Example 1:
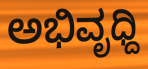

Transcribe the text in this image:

ಅಭಿವೃಧ್ದಿ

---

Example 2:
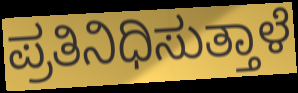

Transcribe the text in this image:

ಪ್ರತಿನಿಧಿಸುತ್ತಾಳೆ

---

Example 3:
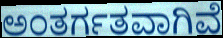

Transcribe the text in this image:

ಅಂತರ್ಗತವಾಗಿವೆ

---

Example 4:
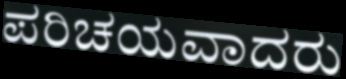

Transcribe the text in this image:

ಪರಿಚಯವಾದರು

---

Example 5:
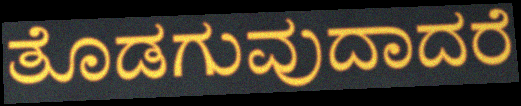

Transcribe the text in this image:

ತೊಡಗುವುದಾದರೆ